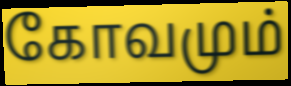
கோவமும்